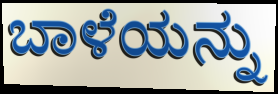
ಬಾಳೆಯನ್ನು